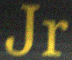
Jr